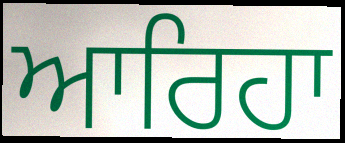
ਆਰਿਹਾ